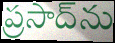
ప్రసాద్‌ను